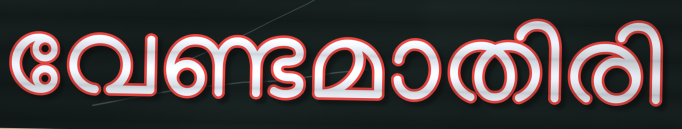
വേണ്ടമാതിരി